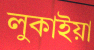
লুকাইয়া